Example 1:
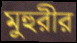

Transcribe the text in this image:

মুহুরীর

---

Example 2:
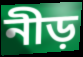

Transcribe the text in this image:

নীড়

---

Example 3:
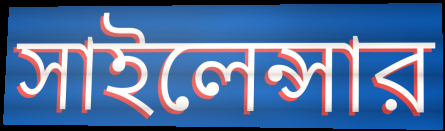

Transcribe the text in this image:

সাইলেন্সার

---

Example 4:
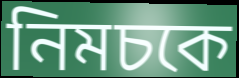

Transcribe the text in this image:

নিমচকে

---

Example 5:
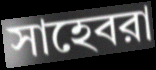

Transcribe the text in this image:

সাহেবরা